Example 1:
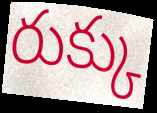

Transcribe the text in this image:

రుక్కు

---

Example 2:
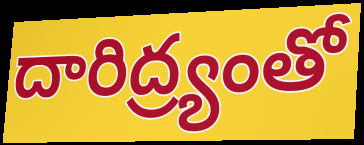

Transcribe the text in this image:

దారిద్ర్యంతో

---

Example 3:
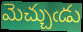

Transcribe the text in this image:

మెచ్చుఁడు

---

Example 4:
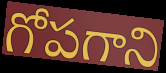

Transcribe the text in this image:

గోపగాని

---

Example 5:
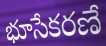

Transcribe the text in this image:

భూసేకరణే